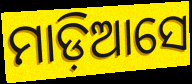
ମାଡ଼ିଆସେ